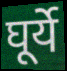
घूर्ये